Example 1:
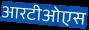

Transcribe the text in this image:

आरटीओएस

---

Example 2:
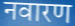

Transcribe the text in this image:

नवारण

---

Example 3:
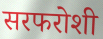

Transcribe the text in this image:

सरफरोशी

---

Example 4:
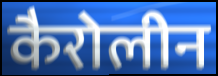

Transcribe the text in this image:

कैरोलीन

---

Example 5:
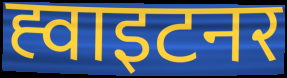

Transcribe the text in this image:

ह्वाइटनर